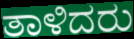
ತಾಳಿದರು